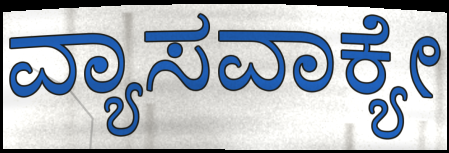
ವ್ಯಾಸವಾಕ್ಯೇ